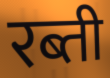
रब्ती